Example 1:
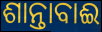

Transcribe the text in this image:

ଶାନ୍ତାବାଈ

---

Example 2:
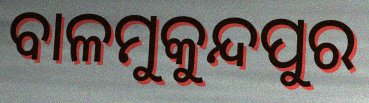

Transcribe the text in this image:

ବାଳମୁକୁନ୍ଦପୁର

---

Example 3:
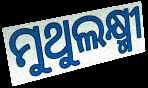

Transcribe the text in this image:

ମୁଥୁଲକ୍ଷ୍ମୀ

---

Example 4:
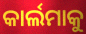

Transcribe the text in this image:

କାର୍ଲମାକୁ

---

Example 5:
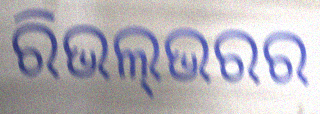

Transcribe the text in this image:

ରିଭଲ୍‍ଭରର